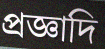
প্রজ্ঞাদি